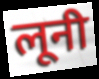
लूनी